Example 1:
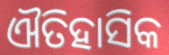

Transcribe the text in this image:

ଐତିହାସିକ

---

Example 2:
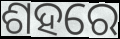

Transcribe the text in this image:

ଶହରେ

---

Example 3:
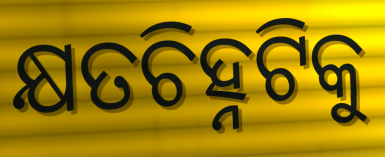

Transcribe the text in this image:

କ୍ଷତଚିହ୍ନଟିକୁ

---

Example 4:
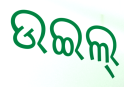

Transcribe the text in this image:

ଉଇଲ୍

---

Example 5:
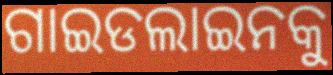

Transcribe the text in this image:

ଗାଇଡଲାଇନକୁ